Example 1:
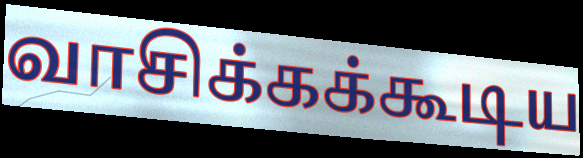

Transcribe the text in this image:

வாசிக்கக்கூடிய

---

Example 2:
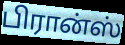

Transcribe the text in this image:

பிரான்ஸ்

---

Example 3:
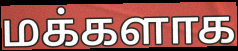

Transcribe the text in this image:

மக்களாக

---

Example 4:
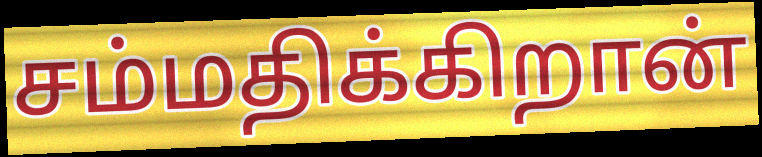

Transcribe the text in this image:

சம்மதிக்கிறான்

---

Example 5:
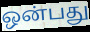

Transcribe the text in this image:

ஒன்பது